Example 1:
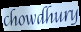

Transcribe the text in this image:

chowdhury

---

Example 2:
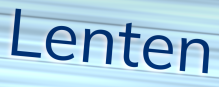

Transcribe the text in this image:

Lenten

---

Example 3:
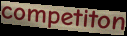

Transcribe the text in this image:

competiton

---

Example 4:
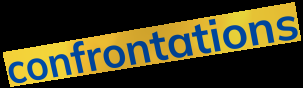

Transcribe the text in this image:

confrontations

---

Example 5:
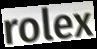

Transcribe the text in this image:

rolex